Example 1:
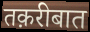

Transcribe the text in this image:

तक़रीबात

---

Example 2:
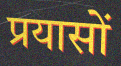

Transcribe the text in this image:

प्रयासों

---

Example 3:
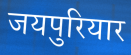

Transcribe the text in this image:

जयपुरियार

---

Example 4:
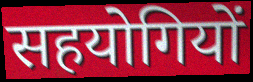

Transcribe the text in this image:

सहयोगियों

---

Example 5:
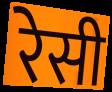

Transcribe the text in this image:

रेसी